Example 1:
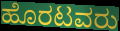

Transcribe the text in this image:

ಹೊರಟವರು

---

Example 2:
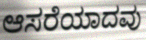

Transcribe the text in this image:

ಆಸರೆಯಾದವು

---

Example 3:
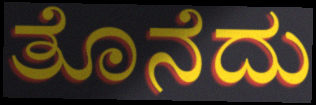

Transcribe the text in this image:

ತೊನೆದು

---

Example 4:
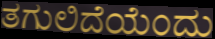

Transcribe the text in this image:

ತಗುಲಿದೆಯೆಂದು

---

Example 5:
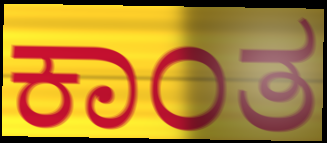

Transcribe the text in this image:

ಕಾಂತ